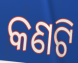
କଣଟି